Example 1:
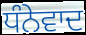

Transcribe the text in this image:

ਧੰਨੇਵਾਦ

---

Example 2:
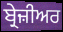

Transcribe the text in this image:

ਬ੍ਰੇਜ਼ੀਅਰ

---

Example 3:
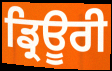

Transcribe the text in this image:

ਡ੍ਰਿਊਰੀ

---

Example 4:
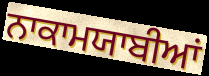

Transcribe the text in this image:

ਨਾਕਾਮਯਾਬੀਆਂ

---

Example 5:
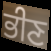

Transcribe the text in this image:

ਭੀਣ